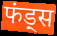
फंड्‌स